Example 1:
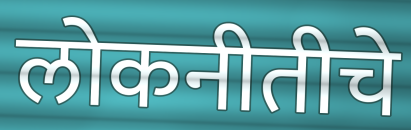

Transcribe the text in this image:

लोकनीतीचे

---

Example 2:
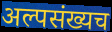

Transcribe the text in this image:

अल्पसंख्यच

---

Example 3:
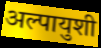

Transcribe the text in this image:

अल्पायुशी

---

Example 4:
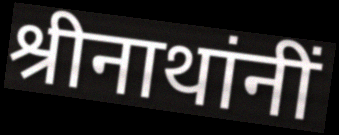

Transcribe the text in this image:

श्रीनाथांनीं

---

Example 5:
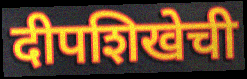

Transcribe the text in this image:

दीपशिखेची